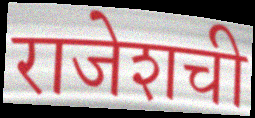
राजेशची